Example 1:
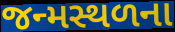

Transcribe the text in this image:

જન્મસ્થળના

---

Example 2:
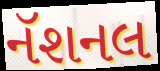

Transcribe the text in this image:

નૅશનલ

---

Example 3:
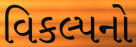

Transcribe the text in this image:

વિકલ્પનો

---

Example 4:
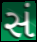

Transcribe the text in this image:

સં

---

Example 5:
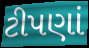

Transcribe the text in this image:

ટીપણાં